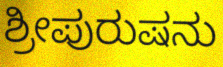
ಶ್ರೀಪುರುಷನು